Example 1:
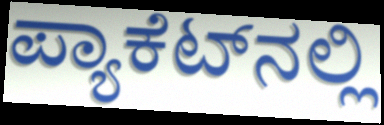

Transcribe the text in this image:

ಪ್ಯಾಕೆಟ್‌ನಲ್ಲಿ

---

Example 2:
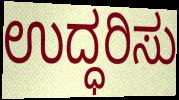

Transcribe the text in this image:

ಉದ್ಧರಿಸು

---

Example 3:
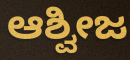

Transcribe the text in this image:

ಆಶ್ವೀಜ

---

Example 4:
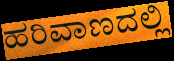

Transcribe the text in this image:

ಹರಿವಾಣದಲ್ಲಿ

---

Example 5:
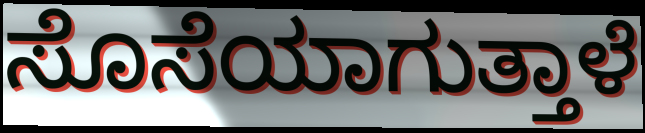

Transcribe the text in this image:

ಸೊಸೆಯಾಗುತ್ತಾಳೆ